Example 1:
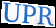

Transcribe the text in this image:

UPR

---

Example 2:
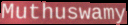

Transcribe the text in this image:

Muthuswamy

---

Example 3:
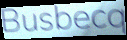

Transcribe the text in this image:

Busbecq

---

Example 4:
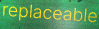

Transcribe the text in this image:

replaceable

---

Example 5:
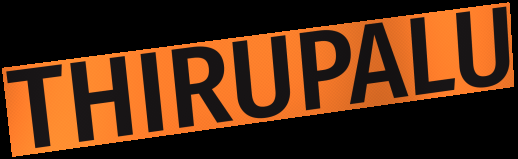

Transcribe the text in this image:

THIRUPALU